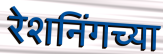
रेशनिंगच्या